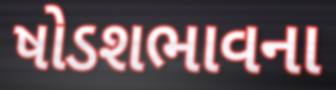
ષોડશભાવના